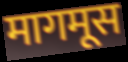
मागमूस